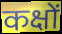
कक्षों